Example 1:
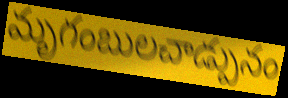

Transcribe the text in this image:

మృగంబులచాడ్పునం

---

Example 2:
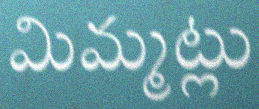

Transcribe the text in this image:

మిమ్మట్లు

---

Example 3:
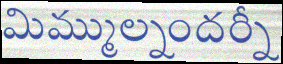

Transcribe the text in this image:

మిమ్ముల్నందర్నీ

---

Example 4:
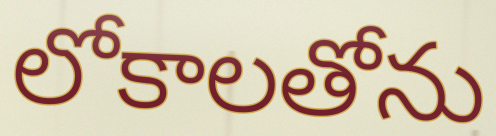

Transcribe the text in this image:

లోకాలతోను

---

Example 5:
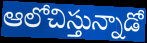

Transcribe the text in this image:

ఆలోచిస్తున్నాడో